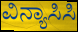
ವಿನ್ಯಾಸಿಸಿ